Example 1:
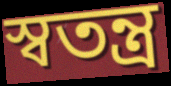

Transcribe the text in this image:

স্বতন্ত্র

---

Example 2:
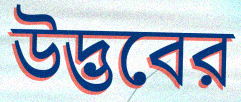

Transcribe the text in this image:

উদ্ভবের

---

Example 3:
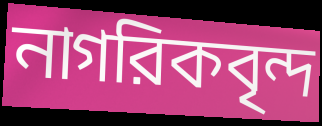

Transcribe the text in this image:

নাগরিকবৃন্দ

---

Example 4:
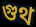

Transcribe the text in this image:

গুথ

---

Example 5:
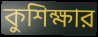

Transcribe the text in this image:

কুশিক্ষার